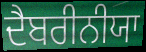
ਦੈਬਰੀਨੀਯਾ